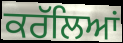
ਕਰੱਲਿਆਂ